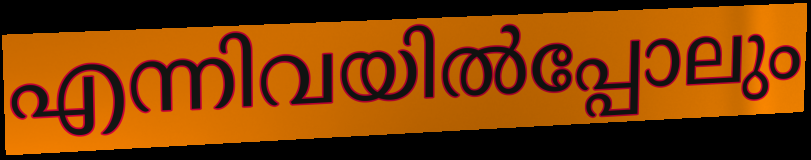
എന്നിവയിൽപ്പോലും